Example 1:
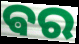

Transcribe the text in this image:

ଵର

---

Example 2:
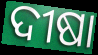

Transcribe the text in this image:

ଦୀଷା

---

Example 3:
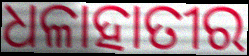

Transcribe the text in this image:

ଧଳାହାତୀର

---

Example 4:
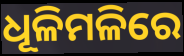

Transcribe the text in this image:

ଧୂଳିମଳିରେ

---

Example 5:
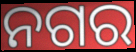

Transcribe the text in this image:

ନଗର